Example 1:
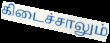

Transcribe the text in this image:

கிடைச்சாலும்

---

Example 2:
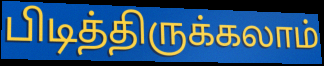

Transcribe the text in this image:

பிடித்திருக்கலாம்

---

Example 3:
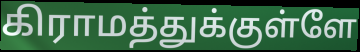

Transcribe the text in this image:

கிராமத்துக்குள்ளே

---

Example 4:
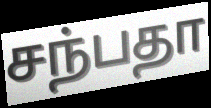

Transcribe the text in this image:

சந்பதா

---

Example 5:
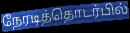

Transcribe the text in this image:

நேரடித்தொடர்பில்